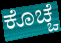
ಕೊಚ್ಚೆ